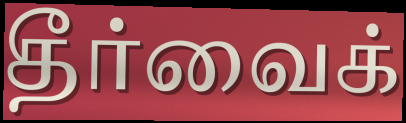
தீர்வைக்